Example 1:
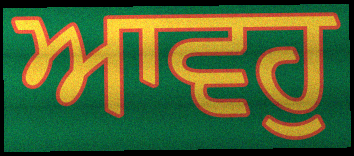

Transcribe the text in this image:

ਆਵਹੁ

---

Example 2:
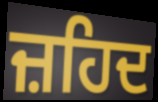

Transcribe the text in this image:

ਜ਼ਹਿਦ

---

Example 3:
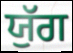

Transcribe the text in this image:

ਯੁੱਗ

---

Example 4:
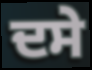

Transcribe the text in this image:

ਦਸੇ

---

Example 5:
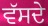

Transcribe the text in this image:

ਵੱਸਦੇ